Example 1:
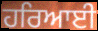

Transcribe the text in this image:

ਹਰਿਆਈ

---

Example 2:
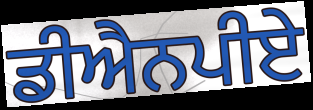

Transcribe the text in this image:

ਡੀਐਨਪੀਏ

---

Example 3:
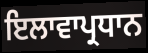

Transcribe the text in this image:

ਇਲਾਵਾਪ੍ਰਧਾਨ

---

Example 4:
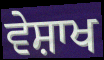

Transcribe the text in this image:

ਵੇਸ਼ਾਖ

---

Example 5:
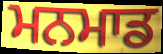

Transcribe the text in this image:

ਮਨਮਾਡ